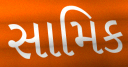
સામિક